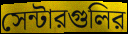
সেন্টারগুলির